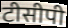
टीसीपी